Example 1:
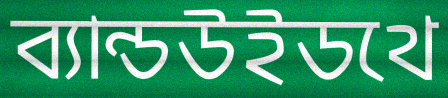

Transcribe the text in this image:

ব্যান্ডউইডথে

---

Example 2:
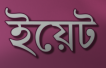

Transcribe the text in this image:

ইয়েট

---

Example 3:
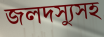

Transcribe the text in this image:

জলদস্যুসহ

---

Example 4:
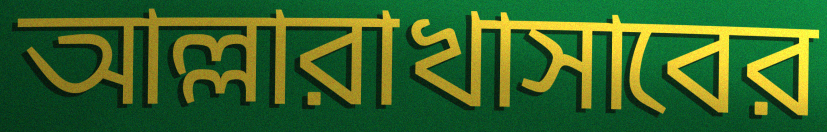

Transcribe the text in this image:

আল্লারাখাসাবের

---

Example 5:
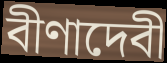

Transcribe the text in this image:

বীণাদেবী